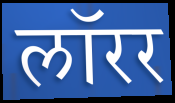
लॉरर